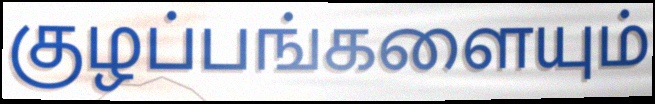
குழப்பங்களையும்